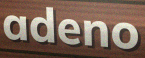
adeno